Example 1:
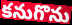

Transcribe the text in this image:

కనుగొను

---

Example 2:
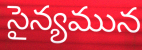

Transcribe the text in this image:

సైన్యమున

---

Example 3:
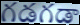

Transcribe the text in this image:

గడగడా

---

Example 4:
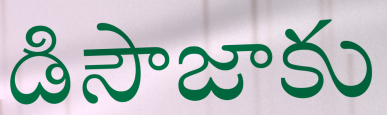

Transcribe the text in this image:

డిసౌజాకు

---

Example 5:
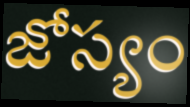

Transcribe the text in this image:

జోస్యం